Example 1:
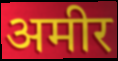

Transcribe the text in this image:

अमीर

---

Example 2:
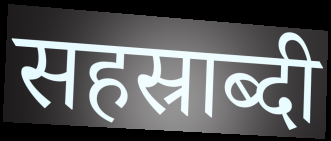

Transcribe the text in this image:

सहस्राब्दी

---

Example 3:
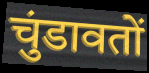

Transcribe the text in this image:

चुंडावतों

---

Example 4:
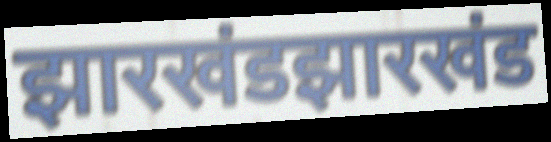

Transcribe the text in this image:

झारखंडझारखंड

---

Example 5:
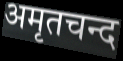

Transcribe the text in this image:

अमृतचन्द